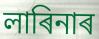
লাৰিনাৰ